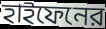
হাইফেনের